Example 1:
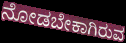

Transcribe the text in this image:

ನೋಡಬೇಕಾಗಿರುವ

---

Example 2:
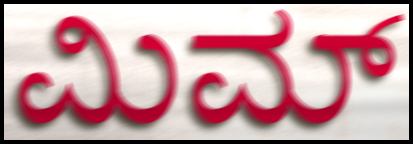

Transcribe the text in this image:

ಮಿಮ್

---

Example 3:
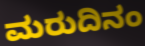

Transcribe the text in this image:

ಮರುದಿನಂ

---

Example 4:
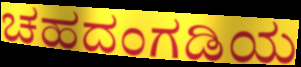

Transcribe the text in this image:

ಚಹದಂಗಡಿಯ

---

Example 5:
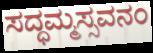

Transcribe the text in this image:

ಸದ್ಧಮ್ಮಸ್ಸವನಂ